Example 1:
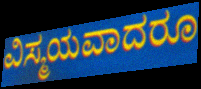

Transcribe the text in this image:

ವಿಸ್ಮಯವಾದರೂ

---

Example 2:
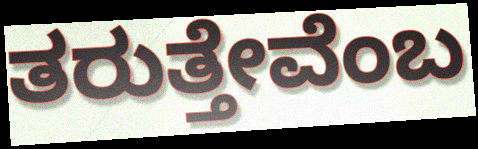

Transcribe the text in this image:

ತರುತ್ತೇವೆಂಬ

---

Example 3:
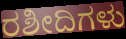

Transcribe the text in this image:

ರಶೀದಿಗಳು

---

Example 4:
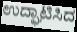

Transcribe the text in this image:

ಉದ್ಘಾಟಿಸಿದ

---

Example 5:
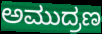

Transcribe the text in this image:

ಅಮುದ್ರಣ